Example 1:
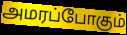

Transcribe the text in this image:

அமரப்போகும்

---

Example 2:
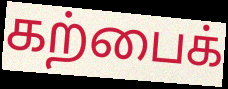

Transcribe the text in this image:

கற்பைக்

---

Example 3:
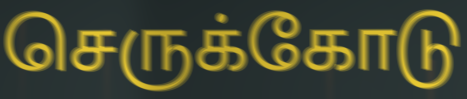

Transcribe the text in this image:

செருக்கோடு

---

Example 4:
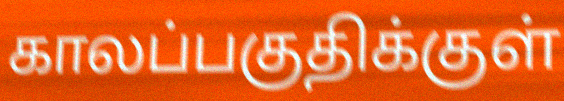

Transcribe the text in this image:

காலப்பகுதிக்குள்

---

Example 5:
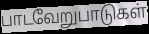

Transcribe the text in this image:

பாடவேறுபாடுகள்